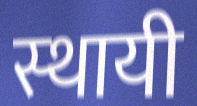
स्‍थायी